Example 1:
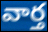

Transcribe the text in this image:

వార్త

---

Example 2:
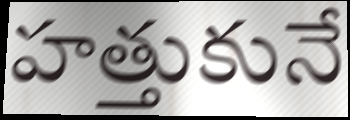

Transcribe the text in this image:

హత్తుకునే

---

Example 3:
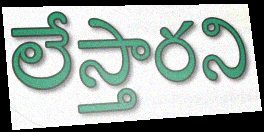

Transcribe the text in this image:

లేస్తారని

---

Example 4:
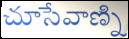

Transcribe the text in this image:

చూసేవాణ్ని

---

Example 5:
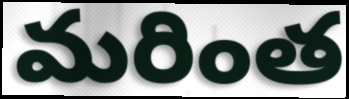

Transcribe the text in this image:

మరింత